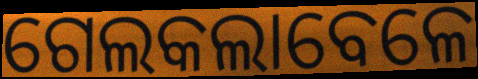
ଗେଲକଲାବେଳେ